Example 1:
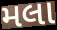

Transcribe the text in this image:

મલા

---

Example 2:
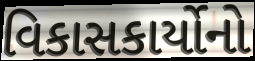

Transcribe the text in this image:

વિકાસકાર્યોનો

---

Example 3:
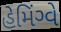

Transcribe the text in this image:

હેમિંગ્વે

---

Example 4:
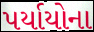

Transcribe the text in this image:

પર્યાયોના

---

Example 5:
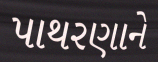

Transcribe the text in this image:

પાથરણાને